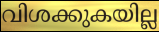
വിശക്കുകയില്ല